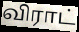
விராட்